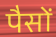
पैसों